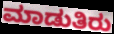
ಮಾಡುತಿರು